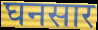
घनसार